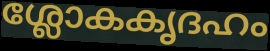
ശ്ലോകകൃദഹം